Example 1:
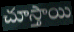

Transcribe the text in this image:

చూస్తాయి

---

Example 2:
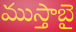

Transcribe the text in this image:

ముస్తాబై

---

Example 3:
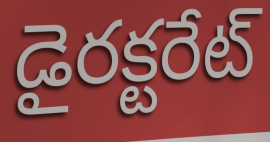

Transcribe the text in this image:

డైరక్టరేట్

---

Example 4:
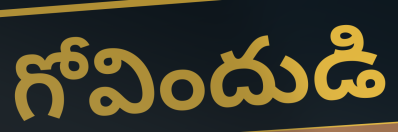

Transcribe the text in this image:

గోవిందుడి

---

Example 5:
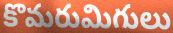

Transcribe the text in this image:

కొమరుమిగులు